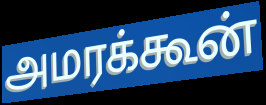
அமரக்கூன்